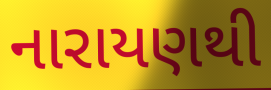
નારાયણથી